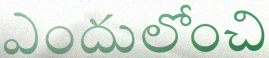
ఎందులోంచి